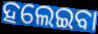
ହଲେଇବା